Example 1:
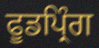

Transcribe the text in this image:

ਫੂਡਪ੍ਰਿੰਗ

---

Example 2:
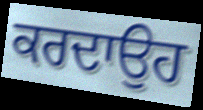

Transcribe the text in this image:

ਕਰਦਾਉਹ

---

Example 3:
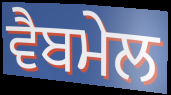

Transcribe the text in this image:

ਵੈਬਮੇਲ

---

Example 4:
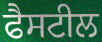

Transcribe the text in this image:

ਫੈਸਟੀਲ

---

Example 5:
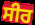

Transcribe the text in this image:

ਸੀਰ